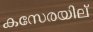
കസേരയില്